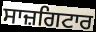
ਸਾਜ਼ਗਿਟਾਰ